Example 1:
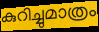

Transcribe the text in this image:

കുറിച്ചുമാത്രം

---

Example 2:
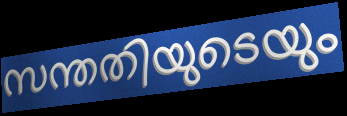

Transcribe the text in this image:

സന്തതിയുടെയും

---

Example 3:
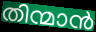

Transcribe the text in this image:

തിന്മാൻ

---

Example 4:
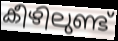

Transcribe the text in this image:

കീഴിലുണ്ട്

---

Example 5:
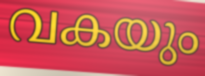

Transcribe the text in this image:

വകയും